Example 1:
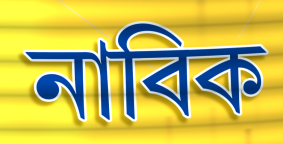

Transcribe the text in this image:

নাবিক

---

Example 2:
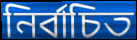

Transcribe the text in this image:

নির্বাচিত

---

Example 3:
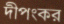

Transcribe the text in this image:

দীপংকর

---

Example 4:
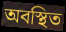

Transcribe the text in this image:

অবস্থিত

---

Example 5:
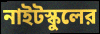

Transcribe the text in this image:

নাইটস্কুলের